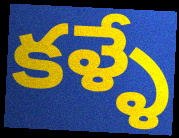
కళ్ళే